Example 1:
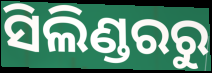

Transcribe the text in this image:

ସିଲିଣ୍ଡରରୁ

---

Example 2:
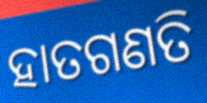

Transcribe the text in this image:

ହାତଗଣତି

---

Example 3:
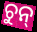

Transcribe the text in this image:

ଚୁନ୍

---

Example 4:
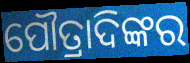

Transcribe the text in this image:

ପୌତ୍ରାଦିଙ୍କର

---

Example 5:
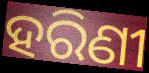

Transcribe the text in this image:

ହରିଣୀ